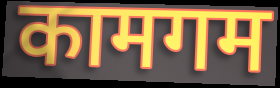
कामगम